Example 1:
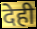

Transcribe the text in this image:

देही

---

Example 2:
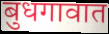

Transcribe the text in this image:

बुधगावात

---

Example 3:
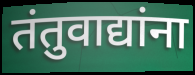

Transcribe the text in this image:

तंतुवाद्यांना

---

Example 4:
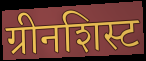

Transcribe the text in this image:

ग्रीनशिस्ट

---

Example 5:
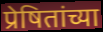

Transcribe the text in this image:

प्रेषितांच्या